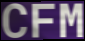
CFM